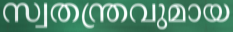
സ്വതന്ത്രവുമായ